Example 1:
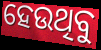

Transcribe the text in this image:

ହେଉଥିବୁ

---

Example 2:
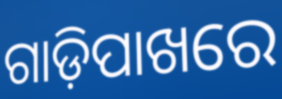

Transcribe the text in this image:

ଗାଡ଼ିପାଖରେ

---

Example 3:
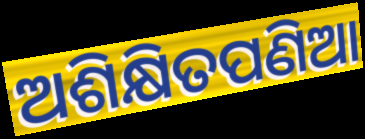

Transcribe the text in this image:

ଅଶିକ୍ଷିତପଣିଆ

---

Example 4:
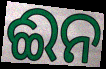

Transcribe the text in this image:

ଈନ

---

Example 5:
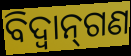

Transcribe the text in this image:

ବିଦ୍ୱାନ୍‌ଗଣ